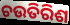
ଚଉତିରିଶ